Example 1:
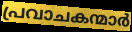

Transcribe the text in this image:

പ്രവാചകന്മാർ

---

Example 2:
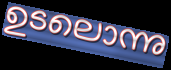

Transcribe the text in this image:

ഉടലൊന്നു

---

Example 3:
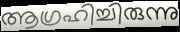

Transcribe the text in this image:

ആഗ്രഹിച്ചിരുന്നു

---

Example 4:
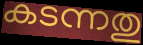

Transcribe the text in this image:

കടന്നതു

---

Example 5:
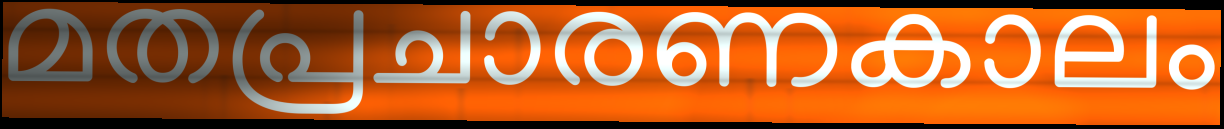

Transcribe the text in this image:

മതപ്രചാരണകാലം